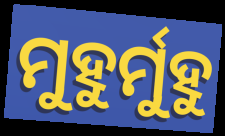
ମୁହୁର୍ମୁହୁ